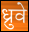
ध्रुवे